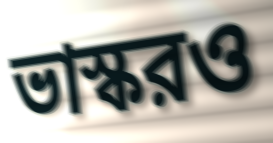
ভাস্করও